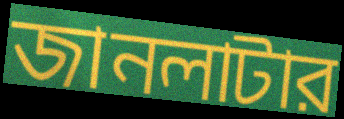
জানলাটার